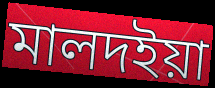
মালদইয়া